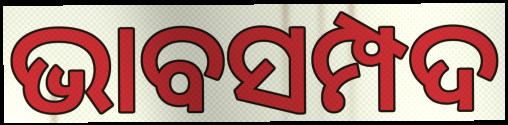
ଭାବସମ୍ପଦ